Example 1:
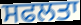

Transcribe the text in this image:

ਸਫਲਤਾ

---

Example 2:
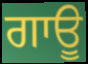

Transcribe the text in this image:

ਗਾਊ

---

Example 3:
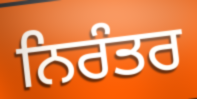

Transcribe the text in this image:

ਨਿਰੰਤਰ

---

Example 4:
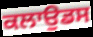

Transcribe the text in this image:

ਕਲਾਉਡਸ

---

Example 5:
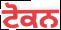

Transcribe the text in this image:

ਟੋਕਨ